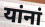
यांनां